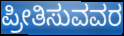
ಪ್ರೀತಿಸುವವರ